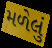
મળેલું